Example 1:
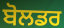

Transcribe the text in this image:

ਬੋਲਡਰ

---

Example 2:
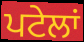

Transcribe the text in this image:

ਪਟੇਲਾਂ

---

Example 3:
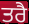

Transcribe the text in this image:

ਤਰੈ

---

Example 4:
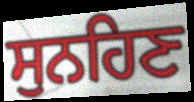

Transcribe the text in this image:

ਸੁਨਹਿਣ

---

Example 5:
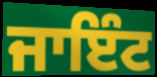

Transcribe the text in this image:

ਜਾਇੰਟ